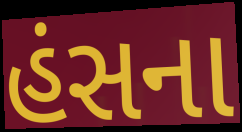
હંસના